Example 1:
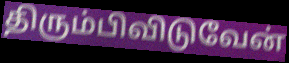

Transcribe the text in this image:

திரும்பிவிடுவேன்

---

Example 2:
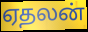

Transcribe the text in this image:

ஏதலன்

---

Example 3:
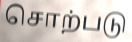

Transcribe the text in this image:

சொற்படு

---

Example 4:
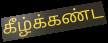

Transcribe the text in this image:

கீழ்க்கண்ட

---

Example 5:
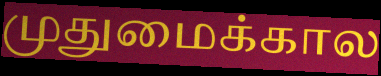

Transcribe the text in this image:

முதுமைக்கால